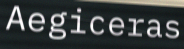
Aegiceras